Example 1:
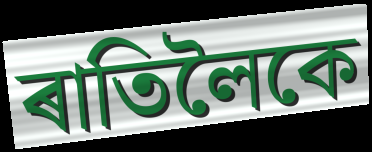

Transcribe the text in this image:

ৰাতিলৈকে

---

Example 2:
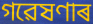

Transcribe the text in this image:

গৱেষণাৰ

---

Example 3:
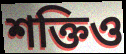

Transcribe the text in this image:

শক্তিও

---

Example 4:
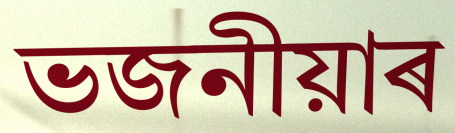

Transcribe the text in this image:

ভজনীয়াৰ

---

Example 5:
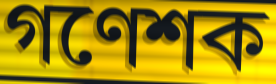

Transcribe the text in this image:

গণেশক